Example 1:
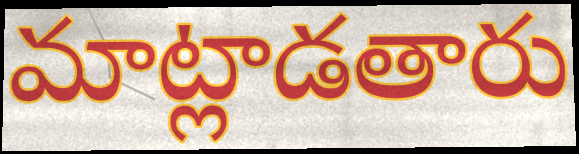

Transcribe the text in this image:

మాట్లాడతారు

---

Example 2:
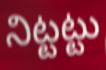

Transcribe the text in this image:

నిట్టట్టు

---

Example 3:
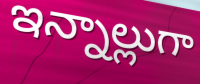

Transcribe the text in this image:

ఇన్నాల్లుగా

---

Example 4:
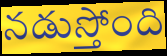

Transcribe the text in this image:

నడుస్తోంది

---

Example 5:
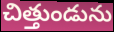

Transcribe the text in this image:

చిత్తుండును